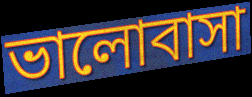
ভালোবাসা